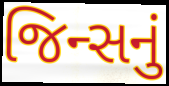
જિન્સનું